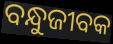
ବନ୍ଧୁଜୀବକ